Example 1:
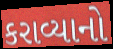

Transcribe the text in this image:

કરાવ્યાનો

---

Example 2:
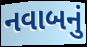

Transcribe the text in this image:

નવાબનું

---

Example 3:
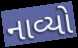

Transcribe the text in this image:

નાવ્યો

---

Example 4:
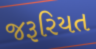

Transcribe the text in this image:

જરૂરિયત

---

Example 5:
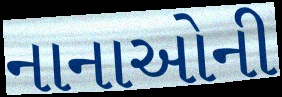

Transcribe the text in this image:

નાનાઓની